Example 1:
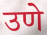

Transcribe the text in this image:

उणे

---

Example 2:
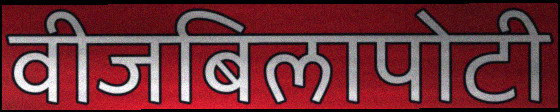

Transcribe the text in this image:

वीजबिलापोटी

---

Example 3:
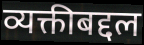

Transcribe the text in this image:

व्यक्तीबद्दल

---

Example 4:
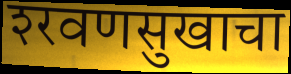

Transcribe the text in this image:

श्रवणसुखाचा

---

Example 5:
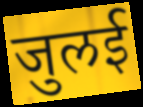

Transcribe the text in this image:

जुलई